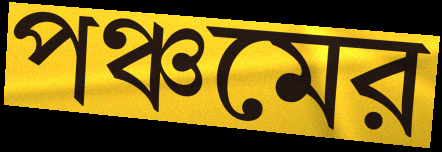
পঞ্চমের